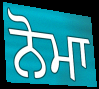
ਨੋਮਾ